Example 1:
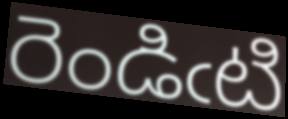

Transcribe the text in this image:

రెండిఁటి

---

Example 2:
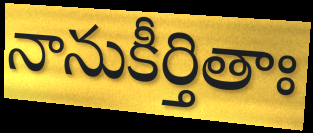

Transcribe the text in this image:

నానుకీర్తితాః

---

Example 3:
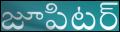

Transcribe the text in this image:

జూపిటర్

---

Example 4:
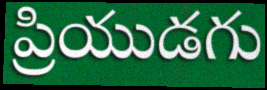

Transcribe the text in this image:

ప్రియుడగు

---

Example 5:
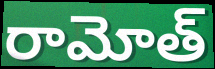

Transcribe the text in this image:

రామోత్